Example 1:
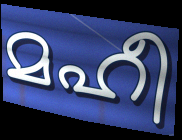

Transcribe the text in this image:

മഹീ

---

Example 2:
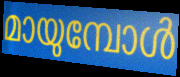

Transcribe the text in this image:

മായുമ്പോൾ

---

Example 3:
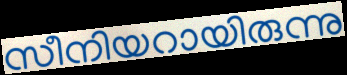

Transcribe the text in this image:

സീനിയറായിരുന്നു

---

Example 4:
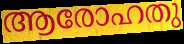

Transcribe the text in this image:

ആരോഹതു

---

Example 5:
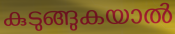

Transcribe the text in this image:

കുടുങ്ങുകയാൽ